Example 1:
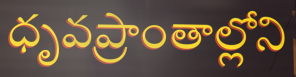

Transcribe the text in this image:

ధృవప్రాంతాల్లోని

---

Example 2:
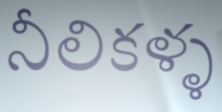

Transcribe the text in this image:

నీలికళ్ళ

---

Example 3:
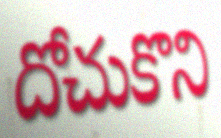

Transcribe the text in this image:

దోచుకొని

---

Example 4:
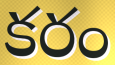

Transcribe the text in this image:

కరం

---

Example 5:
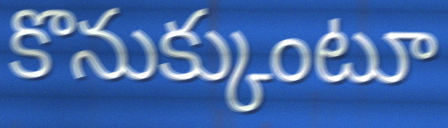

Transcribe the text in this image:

కొనుక్కుంటూ